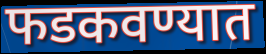
फडकवण्यात